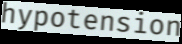
hypotension